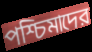
পশ্চিমাদের